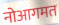
नोआगमत